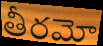
తీరమో